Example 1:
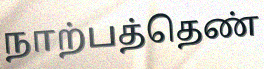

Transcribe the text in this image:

நாற்பத்தெண்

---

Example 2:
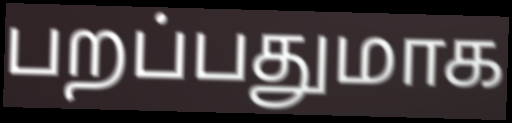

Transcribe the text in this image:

பறப்பதுமாக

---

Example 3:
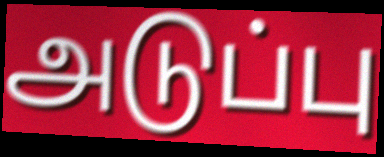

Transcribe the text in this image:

அடுப்பு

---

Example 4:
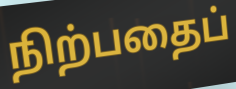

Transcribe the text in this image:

நிற்பதைப்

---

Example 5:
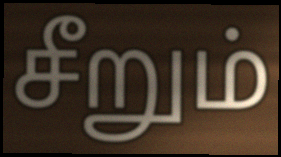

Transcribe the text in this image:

சீறும்